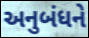
અનુબંધને